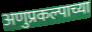
अणुप्रकल्पाच्या